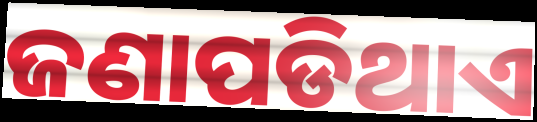
ଜଣାପଡିଥାଏ